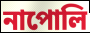
নাপোলি